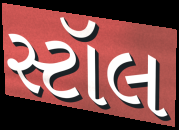
સ્ટૉલ